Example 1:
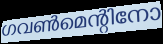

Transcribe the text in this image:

ഗവൺമെന്റിനോ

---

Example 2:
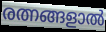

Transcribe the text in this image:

രത്നങ്ങളാൽ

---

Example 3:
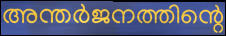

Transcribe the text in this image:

അന്തർജനത്തിന്റെ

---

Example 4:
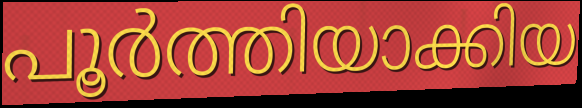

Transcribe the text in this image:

പൂർത്തിയാക്കിയ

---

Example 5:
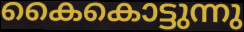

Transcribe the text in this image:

കൈകൊട്ടുന്നു